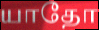
யாதோ